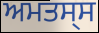
ਅਮਤਸ੍ਸ